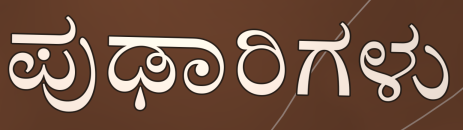
ಪುಢಾರಿಗಳು